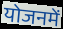
योजनमें